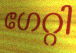
ഗേറ്റി